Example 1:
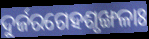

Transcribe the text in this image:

ଦୁର୍ଜରଗେହଶୃଙ୍ଖଳାଃ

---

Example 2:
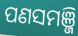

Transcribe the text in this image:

ପଣସମଞ୍ଜି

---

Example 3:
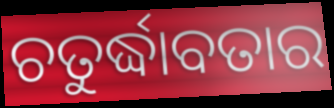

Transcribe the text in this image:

ଚତୁର୍ଦ୍ଧାବତାର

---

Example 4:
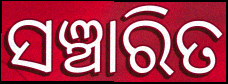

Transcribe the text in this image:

ସଞ୍ଚାରିତ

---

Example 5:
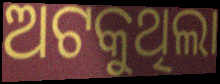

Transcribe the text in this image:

ଅଟକୁଥିଲା